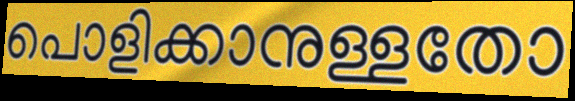
പൊളിക്കാനുള്ളതോ